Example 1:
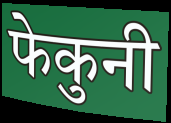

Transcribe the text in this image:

फेकुनी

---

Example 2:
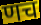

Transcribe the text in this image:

णच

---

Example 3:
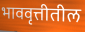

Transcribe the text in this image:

भाववृत्तीतील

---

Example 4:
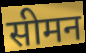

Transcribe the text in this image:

सीमन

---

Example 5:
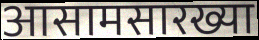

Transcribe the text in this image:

आसामसारख्या